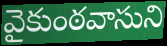
వైకుంఠవాసుని